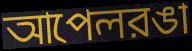
আপেলরঙা